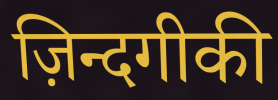
ज़िन्दगीकी